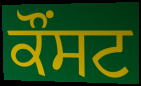
ਕੌਂਸਟ